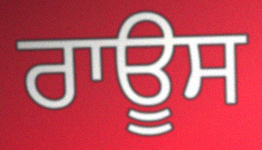
ਰਾਊਸ